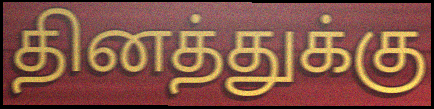
தினத்துக்கு